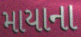
માયાના